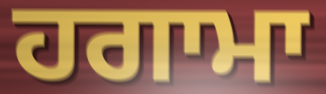
ਹਗਾਮਾ